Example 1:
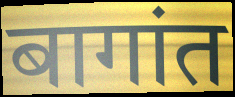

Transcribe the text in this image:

बागांत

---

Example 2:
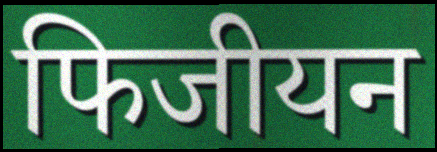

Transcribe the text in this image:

फिजीयन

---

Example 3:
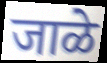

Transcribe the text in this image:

जाळे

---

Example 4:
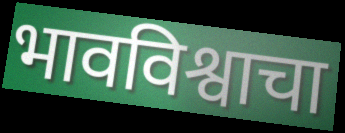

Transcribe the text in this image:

भावविश्वाचा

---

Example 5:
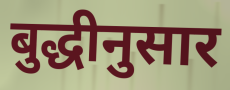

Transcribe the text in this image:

बुद्धीनुसार